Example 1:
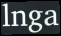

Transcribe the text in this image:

lnga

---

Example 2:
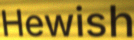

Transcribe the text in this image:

Hewish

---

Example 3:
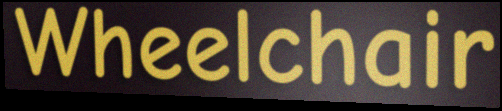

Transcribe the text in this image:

Wheelchair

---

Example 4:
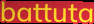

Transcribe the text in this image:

battuta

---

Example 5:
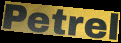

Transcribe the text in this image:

Petrel